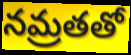
నమ్రతతో